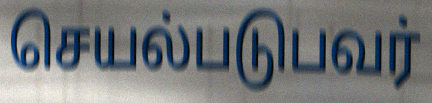
செயல்படுபவர்